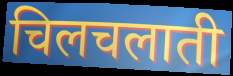
चिलचलाती